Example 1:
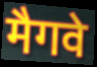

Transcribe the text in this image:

मैगवे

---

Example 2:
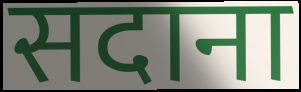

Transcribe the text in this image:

सदाना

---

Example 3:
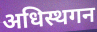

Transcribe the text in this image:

अधिस्थगन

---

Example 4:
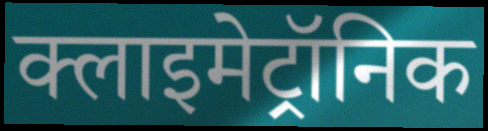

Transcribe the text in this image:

क्लाइमेट्रॉनिक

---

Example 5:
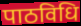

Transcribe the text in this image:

पाठविधि